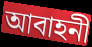
আবাহনী